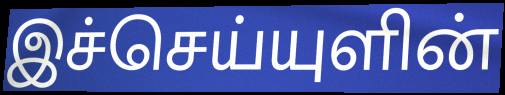
இச்செய்யுளின்